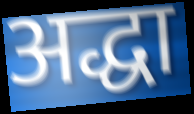
अद्धा